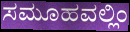
ಸಮೂಹವಲ್ಲಿಂ